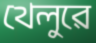
থেলুৱে